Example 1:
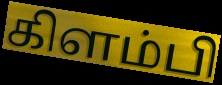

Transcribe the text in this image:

கிளம்பி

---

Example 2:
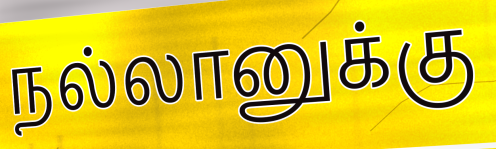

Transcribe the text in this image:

நல்லானுக்கு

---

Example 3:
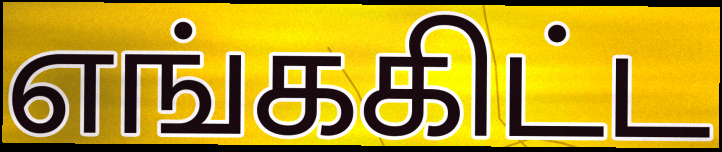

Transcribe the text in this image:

எங்ககிட்ட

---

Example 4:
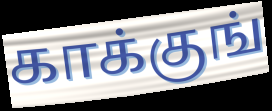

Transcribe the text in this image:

காக்குங்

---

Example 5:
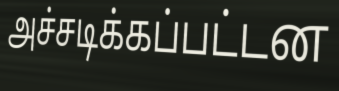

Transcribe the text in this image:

அச்சடிக்கப்பட்டன